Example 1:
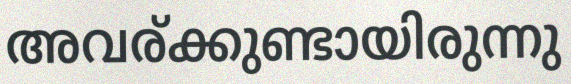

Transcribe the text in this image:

അവര്ക്കുണ്ടായിരുന്നു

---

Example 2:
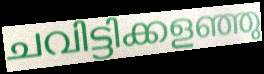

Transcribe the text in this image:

ചവിട്ടിക്കളഞ്ഞു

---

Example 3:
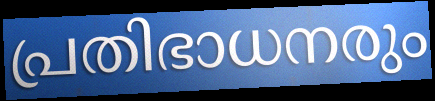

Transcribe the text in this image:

പ്രതിഭാധനരും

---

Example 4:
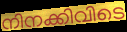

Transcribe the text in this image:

നിനക്കിവിടെ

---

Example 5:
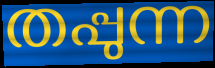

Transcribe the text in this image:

തപ്പുന്ന